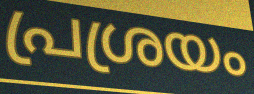
പ്രശ്രയം